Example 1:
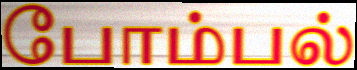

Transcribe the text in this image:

போம்பல்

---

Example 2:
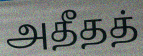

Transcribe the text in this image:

அதீதத்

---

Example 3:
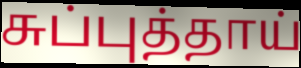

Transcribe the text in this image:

சுப்புத்தாய்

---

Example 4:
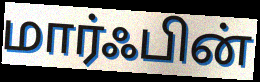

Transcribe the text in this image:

மார்ஃபின்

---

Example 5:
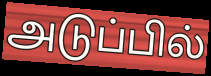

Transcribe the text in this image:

அடுப்பில்